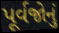
પૂર્વજોનું